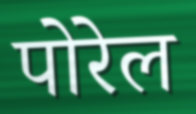
पोरेल